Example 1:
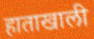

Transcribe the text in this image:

हाताखाली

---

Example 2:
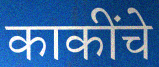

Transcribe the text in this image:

काकींचे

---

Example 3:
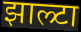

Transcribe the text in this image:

झाल्टा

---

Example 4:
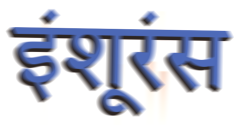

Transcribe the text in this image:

इंशूरंस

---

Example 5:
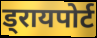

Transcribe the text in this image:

ड्रायपोर्ट